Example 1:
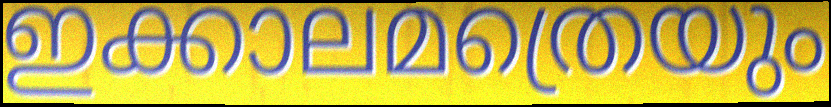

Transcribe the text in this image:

ഇക്കാലമത്രെയും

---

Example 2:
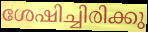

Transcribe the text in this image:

ശേഷിച്ചിരിക്കു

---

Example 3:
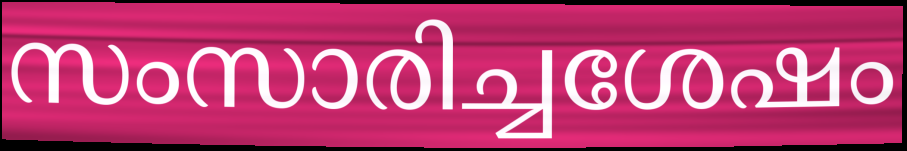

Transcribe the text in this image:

സംസാരിച്ചശേഷം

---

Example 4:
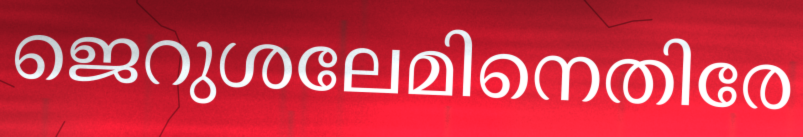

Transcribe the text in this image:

ജെറുശലേമിനെതിരേ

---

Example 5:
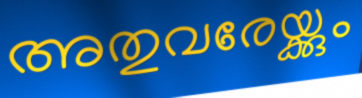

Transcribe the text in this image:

അതുവരേയ്ക്കും